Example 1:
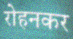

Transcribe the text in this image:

रोहनकर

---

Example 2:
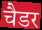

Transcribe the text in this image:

चैडर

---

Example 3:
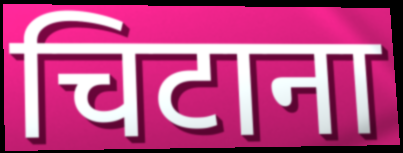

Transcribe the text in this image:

चिटाना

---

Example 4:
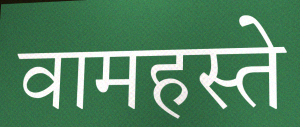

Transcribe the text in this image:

वामहस्ते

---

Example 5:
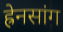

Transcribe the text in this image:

ह्रेनसांग